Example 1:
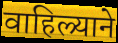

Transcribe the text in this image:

वाहिल्याने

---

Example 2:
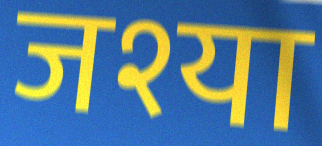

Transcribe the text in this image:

जश्या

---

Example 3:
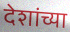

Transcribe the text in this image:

देशांच्या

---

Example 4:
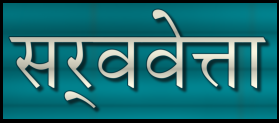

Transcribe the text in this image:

सर्ववेत्ता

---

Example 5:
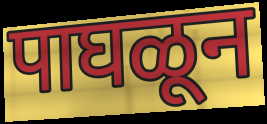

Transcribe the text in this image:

पाघळून